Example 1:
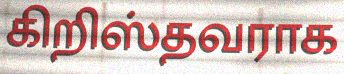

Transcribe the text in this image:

கிறிஸ்தவராக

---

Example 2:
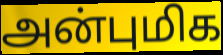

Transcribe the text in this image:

அன்புமிக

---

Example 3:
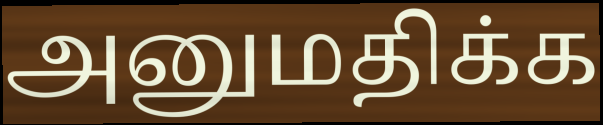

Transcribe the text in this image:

அனுமதிக்க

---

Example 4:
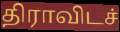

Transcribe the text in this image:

திராவிடச்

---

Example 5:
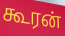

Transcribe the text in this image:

கூரன்